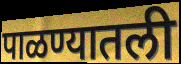
पाळण्यातली